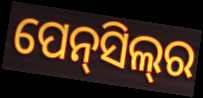
ପେନ୍‍ସିଲ୍‍ର